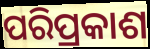
ପରିପ୍ରକାଶ